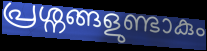
പ്രശ്നങ്ങളുണ്ടാകും